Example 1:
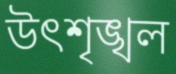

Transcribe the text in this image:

উৎশৃঙ্খল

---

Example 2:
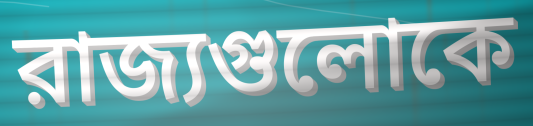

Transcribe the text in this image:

রাজ্যগুলোকে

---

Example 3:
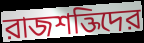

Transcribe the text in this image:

রাজশক্তিদের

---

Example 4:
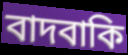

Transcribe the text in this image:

বাদবাকি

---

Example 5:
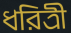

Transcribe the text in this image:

ধরিত্রী